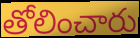
తోలించారు